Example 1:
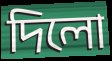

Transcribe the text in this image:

দিলো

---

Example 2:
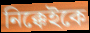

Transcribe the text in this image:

নিক্কেইকে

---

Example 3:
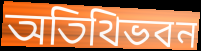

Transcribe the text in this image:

অতিথিভবন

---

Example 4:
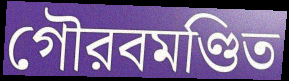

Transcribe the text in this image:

গৌরবমণ্ডিত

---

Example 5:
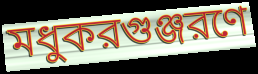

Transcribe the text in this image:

মধুকরগুঞ্জরণে